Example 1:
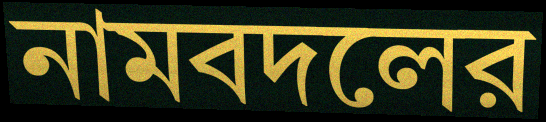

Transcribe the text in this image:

নামবদলের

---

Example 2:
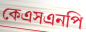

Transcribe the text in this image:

কেএসএনপি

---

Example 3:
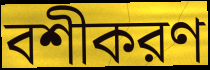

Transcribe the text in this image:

বশীকরণ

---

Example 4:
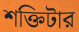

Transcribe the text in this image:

শক্তিটার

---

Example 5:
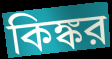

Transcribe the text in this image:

কিঙ্কর